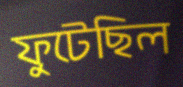
ফুটেছিল